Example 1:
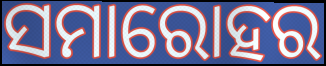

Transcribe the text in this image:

ସମାରୋହର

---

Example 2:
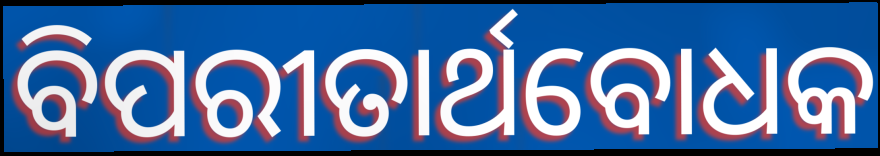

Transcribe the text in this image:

ବିପରୀତାର୍ଥବୋଧକ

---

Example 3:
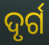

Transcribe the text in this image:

ଦୃର୍ଗ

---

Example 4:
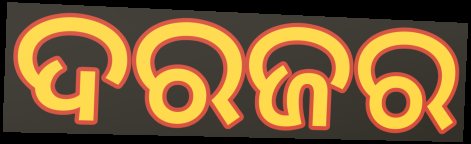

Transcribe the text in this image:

ଦରଜର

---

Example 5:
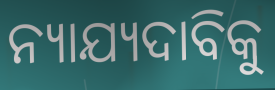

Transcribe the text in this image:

ନ୍ୟାଯ୍ୟଦାବିକୁ